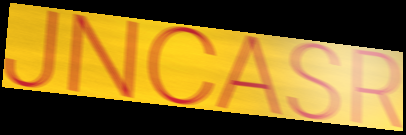
JNCASR